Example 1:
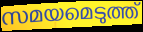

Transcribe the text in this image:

സമയമെടുത്ത്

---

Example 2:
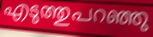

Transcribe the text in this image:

എടുത്തുപറഞ്ഞു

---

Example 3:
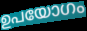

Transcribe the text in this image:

ഉപയോഗം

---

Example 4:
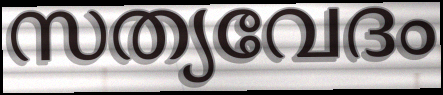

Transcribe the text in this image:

സത്യവേദം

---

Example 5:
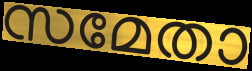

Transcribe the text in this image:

സമേതാ